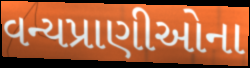
વન્યપ્રાણીઓના